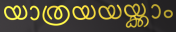
യാത്രയയയ്ക്കാം